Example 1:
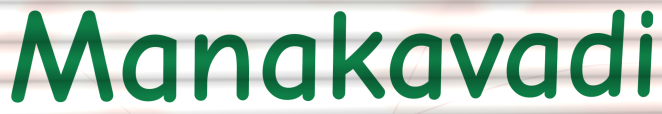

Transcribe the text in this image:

Manakavadi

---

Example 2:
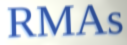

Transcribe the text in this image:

RMAs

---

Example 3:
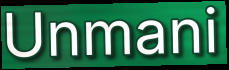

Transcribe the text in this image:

Unmani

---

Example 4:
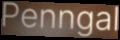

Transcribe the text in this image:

Penngal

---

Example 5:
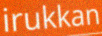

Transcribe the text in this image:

irukkan